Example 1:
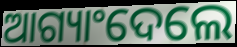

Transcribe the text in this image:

ଆଗ୍ୟାଂଦେଲେ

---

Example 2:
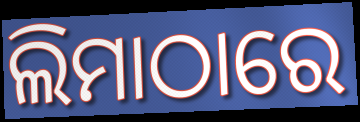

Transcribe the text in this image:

ଲିମାଠାରେ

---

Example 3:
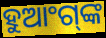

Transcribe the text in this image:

ହୁଆଂଗ୍‍ଙ୍କ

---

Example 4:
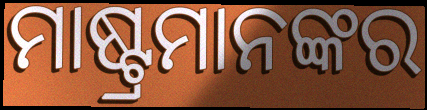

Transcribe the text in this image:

ମାଷ୍ଟ୍ରମାନଙ୍କର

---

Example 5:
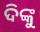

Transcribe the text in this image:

ଦିଙ୍କୁ